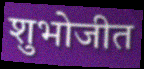
शुभोजीत